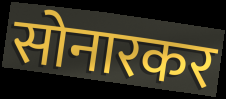
सोनारकर